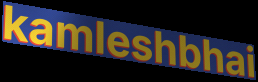
kamleshbhai